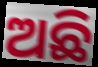
ଅଛି